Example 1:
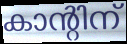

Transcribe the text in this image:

കാന്റിന്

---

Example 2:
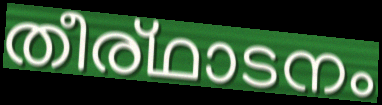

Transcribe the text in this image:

തീര്ഥാടനം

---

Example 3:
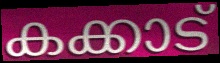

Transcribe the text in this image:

കക്കാട്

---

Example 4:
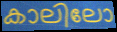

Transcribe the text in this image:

കാലിലോ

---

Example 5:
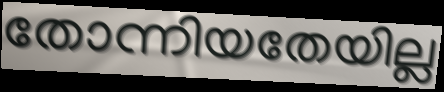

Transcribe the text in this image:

തോന്നിയതേയില്ല